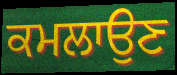
ਕਮਲਾਉਣ